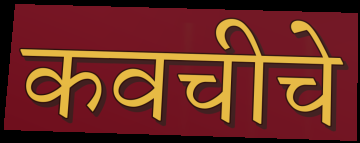
कवचीचे